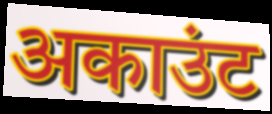
अकाउंट